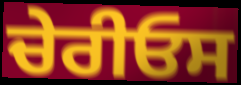
ਚੇਰੀਓਸ